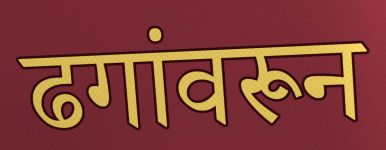
ढगांवरून